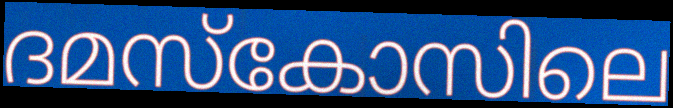
ദമസ്കോസിലെ